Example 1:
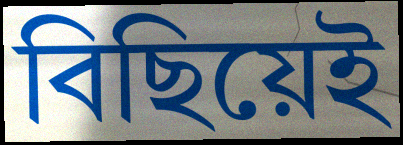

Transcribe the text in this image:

বিছিয়েই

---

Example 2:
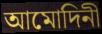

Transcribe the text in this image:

আমোদিনী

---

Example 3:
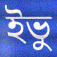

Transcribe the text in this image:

ইভু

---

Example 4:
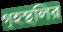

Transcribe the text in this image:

গৃহস্থলির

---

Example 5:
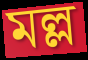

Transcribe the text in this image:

মল্ল